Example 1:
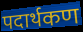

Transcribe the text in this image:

पदार्थकण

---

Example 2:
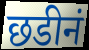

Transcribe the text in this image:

छडीनं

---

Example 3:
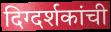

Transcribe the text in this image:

दिग्दर्शकांची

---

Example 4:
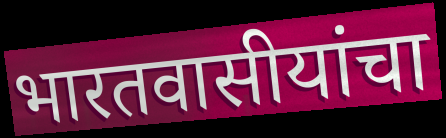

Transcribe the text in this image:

भारतवासीयांचा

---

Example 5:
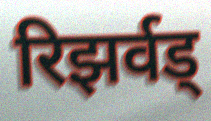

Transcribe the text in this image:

रिझर्वड्